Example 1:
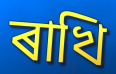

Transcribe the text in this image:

ৰাখি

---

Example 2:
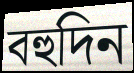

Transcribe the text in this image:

বহুদিন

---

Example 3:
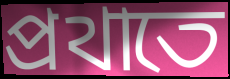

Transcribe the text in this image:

প্ৰথাতে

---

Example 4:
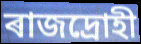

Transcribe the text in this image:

ৰাজদ্ৰোহী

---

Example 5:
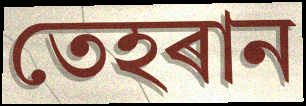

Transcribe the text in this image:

তেহৰান